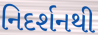
નિદર્શનથી